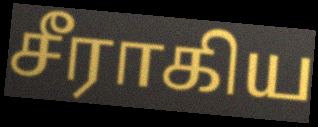
சீராகிய